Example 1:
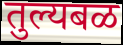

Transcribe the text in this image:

तुल्यबळ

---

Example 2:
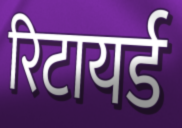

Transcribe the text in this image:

रिटायर्ड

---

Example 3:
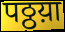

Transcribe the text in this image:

पठ्ठय़ा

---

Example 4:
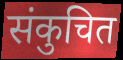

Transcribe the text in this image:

संकुचित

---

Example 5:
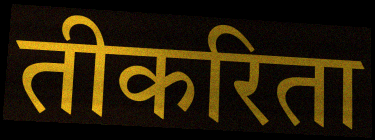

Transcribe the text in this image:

तीकरिता